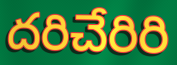
దరిచేరిరి